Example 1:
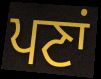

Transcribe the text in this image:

ਪਣਾਂ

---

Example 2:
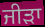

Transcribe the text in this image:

ਜੀੜਾ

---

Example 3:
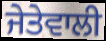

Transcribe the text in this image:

ਜੇਤੇਵਾਲੀ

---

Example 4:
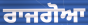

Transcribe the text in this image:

ਰਾਜਗੋਆ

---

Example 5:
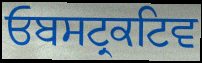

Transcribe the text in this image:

ਓਬਸਟ੍ਰਕਟਿਵ